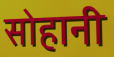
सोहानी